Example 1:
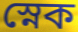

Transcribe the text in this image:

স্নেক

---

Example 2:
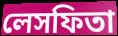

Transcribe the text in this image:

লেসফিতা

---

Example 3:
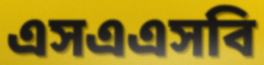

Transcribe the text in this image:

এসএএসবি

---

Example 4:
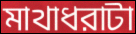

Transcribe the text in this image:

মাথাধরাটা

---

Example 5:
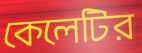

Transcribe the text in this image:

কেলেটির